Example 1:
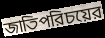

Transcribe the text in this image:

জাতিপরিচয়ের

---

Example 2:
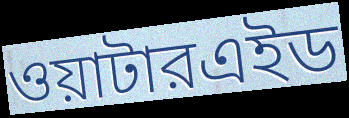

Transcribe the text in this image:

ওয়াটারএইড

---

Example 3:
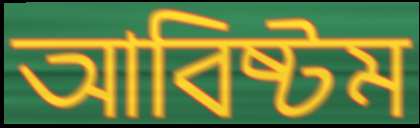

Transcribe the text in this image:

আবিষ্টম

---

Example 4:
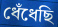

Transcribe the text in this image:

ধেঁধেছি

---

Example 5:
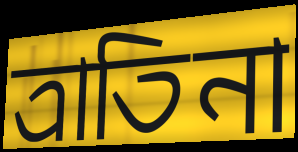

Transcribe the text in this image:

ত্রাতিনা